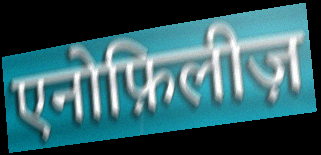
एनोफ़िलीज़